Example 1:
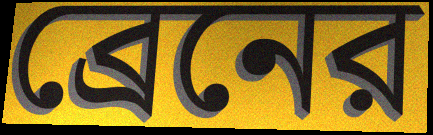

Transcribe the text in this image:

ব্রেনের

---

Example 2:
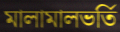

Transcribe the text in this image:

মালামালভর্তি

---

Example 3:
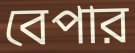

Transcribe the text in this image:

বেপার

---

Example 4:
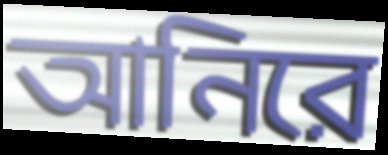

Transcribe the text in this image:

আনিরে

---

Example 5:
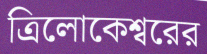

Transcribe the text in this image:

ত্রিলোকেশ্বরের